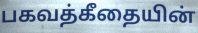
பகவத்கீதையின்